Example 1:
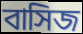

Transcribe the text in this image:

বাসিজ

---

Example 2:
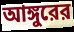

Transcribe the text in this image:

আঙ্গুরের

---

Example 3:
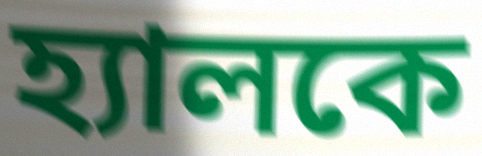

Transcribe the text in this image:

হ্যালকে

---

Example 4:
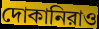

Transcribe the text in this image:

দোকানিরাও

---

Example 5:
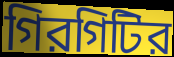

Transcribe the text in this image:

গিরগিটির